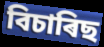
বিচাৰিছ